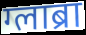
ग्लाब्रा